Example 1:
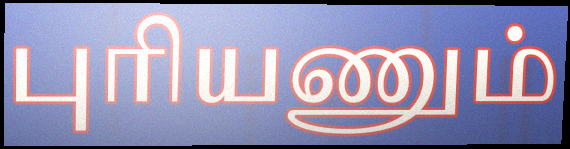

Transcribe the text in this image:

புரியணும்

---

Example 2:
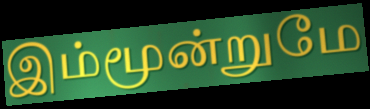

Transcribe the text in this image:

இம்மூன்றுமே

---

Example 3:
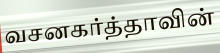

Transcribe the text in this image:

வசனகர்த்தாவின்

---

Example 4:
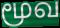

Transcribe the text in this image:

மூவ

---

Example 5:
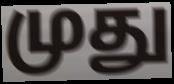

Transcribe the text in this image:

முது